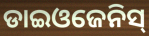
ଡାଇଓଜେନିସ୍